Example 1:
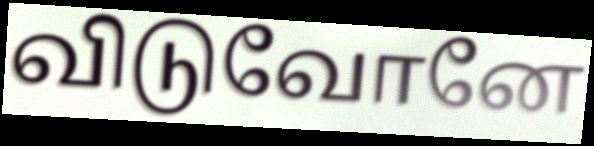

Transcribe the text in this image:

விடுவோனே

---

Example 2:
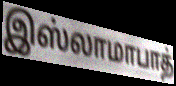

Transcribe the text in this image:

இஸ்லாமாபாத்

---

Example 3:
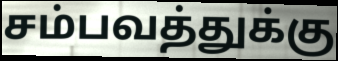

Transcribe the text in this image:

சம்பவத்துக்கு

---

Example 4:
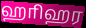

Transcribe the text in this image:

ஹரிஹர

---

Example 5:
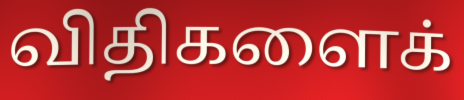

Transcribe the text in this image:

விதிகளைக்